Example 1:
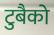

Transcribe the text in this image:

टुबैको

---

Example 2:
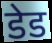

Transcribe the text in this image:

डेड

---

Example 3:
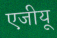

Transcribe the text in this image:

एजीयू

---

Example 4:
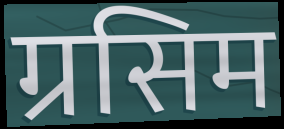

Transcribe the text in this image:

ग्रसिम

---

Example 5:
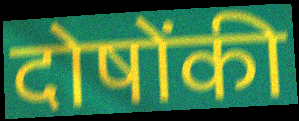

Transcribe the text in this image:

दोषोंकी